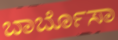
ಬಾರ್ಬೊಸಾ